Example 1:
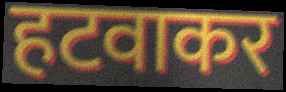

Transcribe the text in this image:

हटवाकर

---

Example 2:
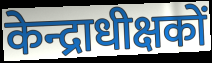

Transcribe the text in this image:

केन्द्राधीक्षकों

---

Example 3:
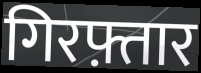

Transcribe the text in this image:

गिरफ़्तार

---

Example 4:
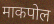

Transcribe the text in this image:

माकपोल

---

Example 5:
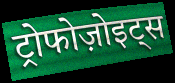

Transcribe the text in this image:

ट्रोफोज़ोइट्स